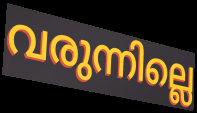
വരുന്നില്ലെ